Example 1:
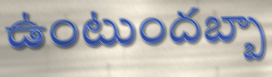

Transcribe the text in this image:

ఉంటుందబ్బా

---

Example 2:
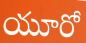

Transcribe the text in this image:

యూరో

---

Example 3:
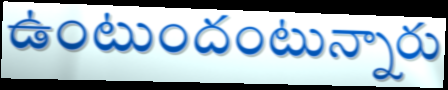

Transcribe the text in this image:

ఉంటుందంటున్నారు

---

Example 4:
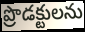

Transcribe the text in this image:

ప్రొడక్టులను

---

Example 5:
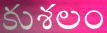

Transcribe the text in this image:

కుశలం